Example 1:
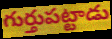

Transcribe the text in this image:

గుర్తుపట్టాడు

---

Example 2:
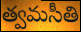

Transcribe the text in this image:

త్వమసీతి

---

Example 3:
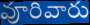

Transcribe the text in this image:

వూరివారు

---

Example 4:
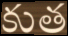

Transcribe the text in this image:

కుత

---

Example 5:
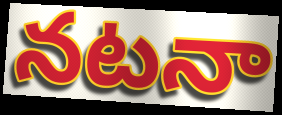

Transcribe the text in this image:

నటనా